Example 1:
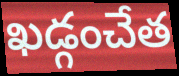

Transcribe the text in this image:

ఖడ్గంచేత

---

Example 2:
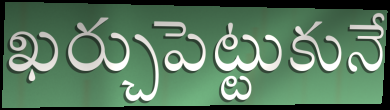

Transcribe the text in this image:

ఖర్చుపెట్టుకునే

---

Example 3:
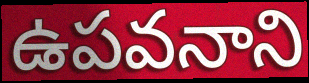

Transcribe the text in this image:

ఉపవనాని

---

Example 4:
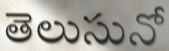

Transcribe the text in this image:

తెలుసునో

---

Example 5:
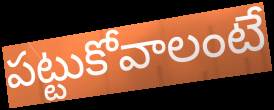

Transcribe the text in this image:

పట్టుకోవాలంటే